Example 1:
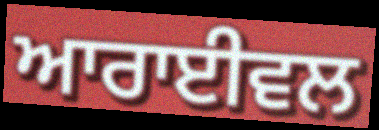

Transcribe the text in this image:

ਆਰਾਈਵਲ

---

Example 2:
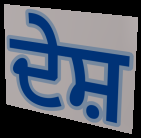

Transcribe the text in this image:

ਦੇਸ਼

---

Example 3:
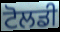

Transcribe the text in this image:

ਟੋਲਡੀ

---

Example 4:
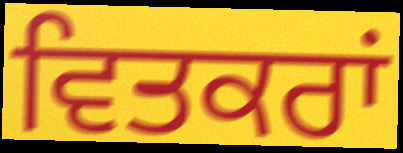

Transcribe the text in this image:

ਵਿਤਕਰਾਂ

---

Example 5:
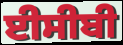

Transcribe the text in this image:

ਈਸੀਬੀ